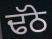
ਢੱਠੇ